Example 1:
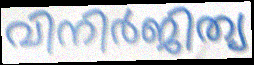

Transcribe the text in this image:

വിനിർജിത്യ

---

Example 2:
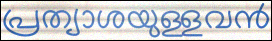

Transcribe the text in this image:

പ്രത്യാശയുള്ളവൻ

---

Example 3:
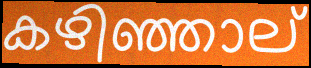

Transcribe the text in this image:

കഴിഞ്ഞാല്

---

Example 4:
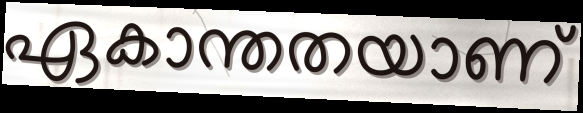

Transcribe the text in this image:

ഏകാന്തതയാണ്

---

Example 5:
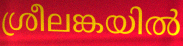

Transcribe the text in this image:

ശ്രീലങ്കയിൽ